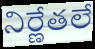
నిర్ణేతలే